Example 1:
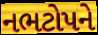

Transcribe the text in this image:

નભટોપને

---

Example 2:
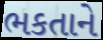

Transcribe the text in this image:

ભકતાને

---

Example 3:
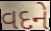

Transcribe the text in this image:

વદને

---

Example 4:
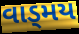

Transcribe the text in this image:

વાડ્મય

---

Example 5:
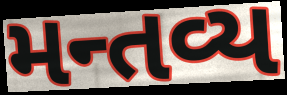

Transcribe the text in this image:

મન્તવ્ય